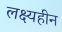
लक्ष्यहीन